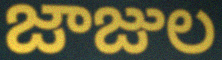
జాజుల